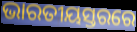
ଭାରତୀୟସ୍ତରରେ